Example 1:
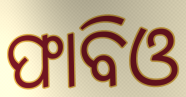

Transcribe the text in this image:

ଫାବିଓ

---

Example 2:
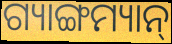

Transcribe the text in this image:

ଗ୍ୟାଙ୍ଗମ୍ୟାନ୍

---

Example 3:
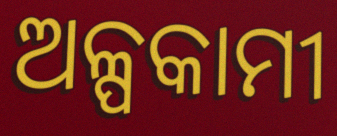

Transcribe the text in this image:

ଅଳ୍ପକାମୀ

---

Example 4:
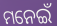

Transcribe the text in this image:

ମନେଇଁ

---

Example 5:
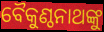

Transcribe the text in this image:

ବୈକୁଣ୍ଠନାଥଙ୍କୁ